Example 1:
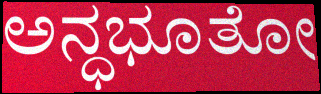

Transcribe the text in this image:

ಅನ್ಧಭೂತೋ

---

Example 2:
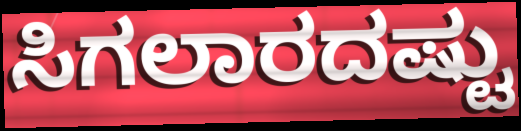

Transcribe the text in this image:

ಸಿಗಲಾರದಷ್ಟು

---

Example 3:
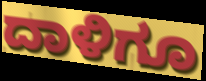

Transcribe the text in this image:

ದಾಳಿಗೂ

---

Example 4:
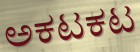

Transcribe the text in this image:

ಅಕಟಕಟ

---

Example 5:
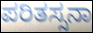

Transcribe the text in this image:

ಪರಿತಸ್ಸನಾ